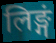
लिङ्गं